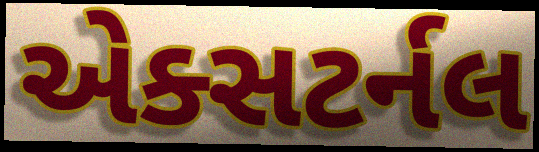
એક્સટર્નલ